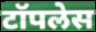
टॉपलेस